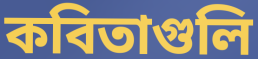
কবিতাগুলি